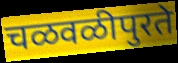
चळवळीपुरते